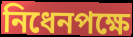
নিধেনপক্ষে